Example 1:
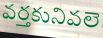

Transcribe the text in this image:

వర్తకునివలె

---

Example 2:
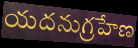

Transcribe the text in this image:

యదనుగ్రహేణ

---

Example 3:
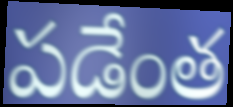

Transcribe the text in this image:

పడేంత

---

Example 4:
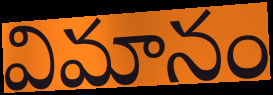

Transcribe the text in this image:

విమానం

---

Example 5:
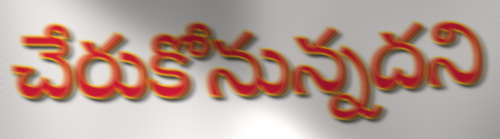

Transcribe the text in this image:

చేరుకోనున్నదని